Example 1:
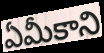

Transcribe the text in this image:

ఏమీకాని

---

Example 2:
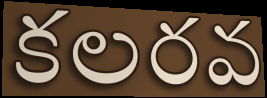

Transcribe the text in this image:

కలరవ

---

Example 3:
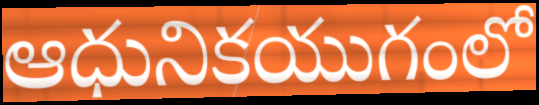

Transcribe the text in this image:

ఆధునికయుగంలో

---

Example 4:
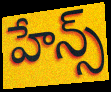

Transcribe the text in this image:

హేన్స్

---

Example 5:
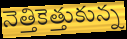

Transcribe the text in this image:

నెత్తికెత్తుకున్న